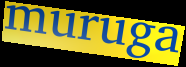
muruga